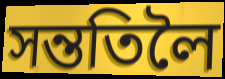
সন্ততিলৈ